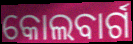
କୋଲବାର୍ଗ